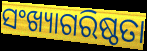
ସଂଖ୍ୟାଗରିଷ୍ଠତା